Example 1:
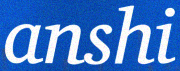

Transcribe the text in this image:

anshi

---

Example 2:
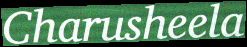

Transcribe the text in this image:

Charusheela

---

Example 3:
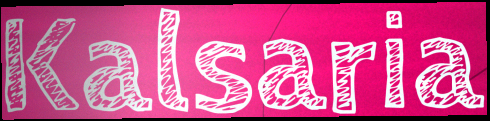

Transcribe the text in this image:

Kalsaria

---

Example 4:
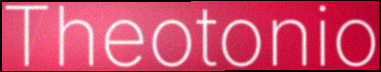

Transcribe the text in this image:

Theotonio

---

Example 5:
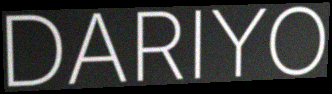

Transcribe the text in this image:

DARIYO